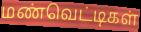
மண்வெட்டிகள்